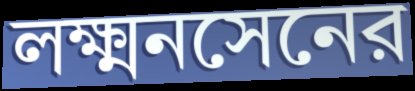
লক্ষ্মনসেনের